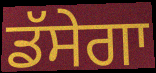
ਡੱਸੇਗਾ